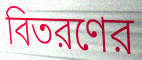
বিতরণের